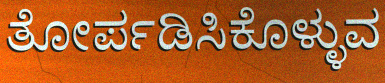
ತೋರ್ಪಡಿಸಿಕೊಳ್ಳುವ